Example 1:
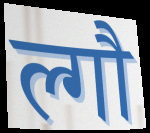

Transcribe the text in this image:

ल्गौ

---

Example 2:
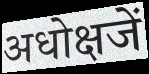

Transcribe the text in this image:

अधोक्षजें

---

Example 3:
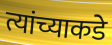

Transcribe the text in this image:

त्यांच्याकडे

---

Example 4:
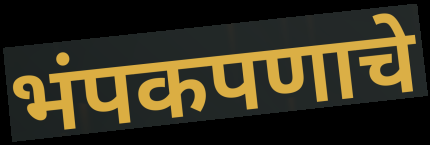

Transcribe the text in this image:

भंपकपणाचे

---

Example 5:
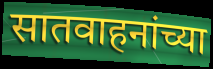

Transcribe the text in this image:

सातवाहनांच्या